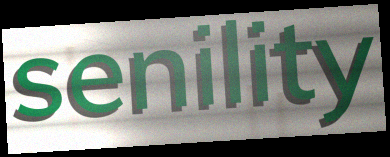
senility